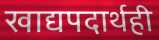
खाद्यपदार्थही